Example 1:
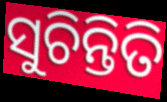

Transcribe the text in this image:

ସୁଚିନ୍ତିତି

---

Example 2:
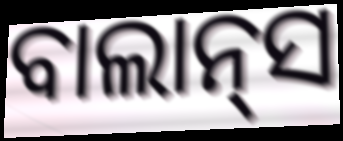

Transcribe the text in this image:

ବାଲାନ୍‌ସ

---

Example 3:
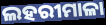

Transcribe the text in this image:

ଲହରୀମାଳା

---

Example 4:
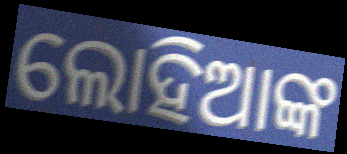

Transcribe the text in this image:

ଲୋହିଆଙ୍କ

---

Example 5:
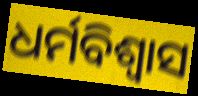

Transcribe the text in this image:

ଧର୍ମବିଶ୍ବାସ